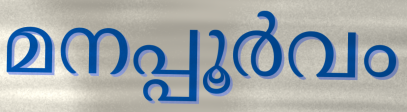
മനപ്പൂർവം